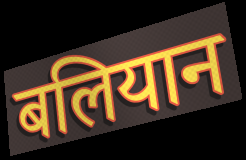
बलियान